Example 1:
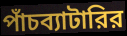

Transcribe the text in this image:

পাঁচব্যাটারির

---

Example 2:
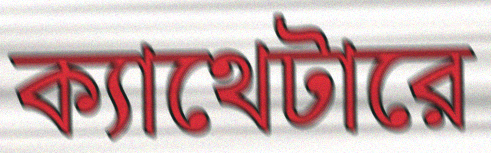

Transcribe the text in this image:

ক্যাথেটারে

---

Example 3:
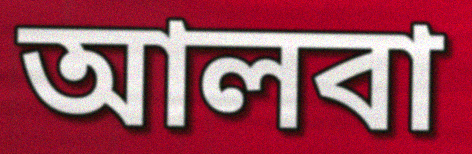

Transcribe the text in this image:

আলবা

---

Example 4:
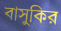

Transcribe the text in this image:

বাসুকির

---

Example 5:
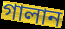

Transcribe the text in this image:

গালান